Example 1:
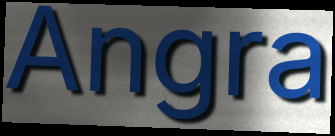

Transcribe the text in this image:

Angra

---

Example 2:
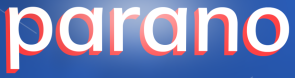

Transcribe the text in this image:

parano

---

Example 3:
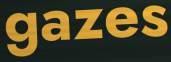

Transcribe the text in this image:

gazes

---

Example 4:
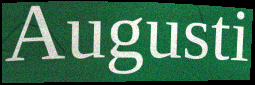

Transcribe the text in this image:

Augusti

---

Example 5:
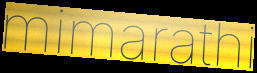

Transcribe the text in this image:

mimarathi